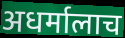
अधर्मालाच